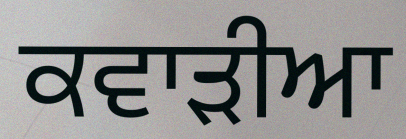
ਕਵਾੜੀਆ